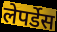
लेपर्डेस